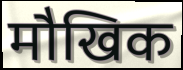
मौखिक